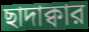
ছাদাক্বার